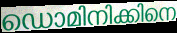
ഡൊമിനിക്കിനെ